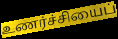
உணர்ச்சியைப்